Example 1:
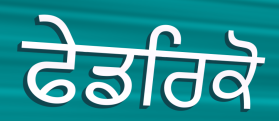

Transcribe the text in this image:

ਫੇਡਰਿਕੋ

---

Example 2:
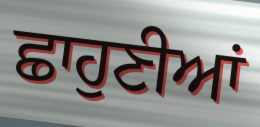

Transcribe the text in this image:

ਛਾਹੁਣੀਆਂ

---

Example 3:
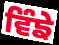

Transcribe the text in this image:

ਵਿੰਙੇ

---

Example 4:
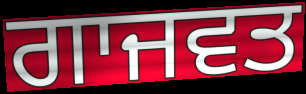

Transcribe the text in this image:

ਗਾਜਵਤ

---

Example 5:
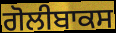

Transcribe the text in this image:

ਗੋਲੀਬਾਕਸ